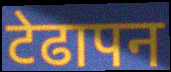
टेढापन